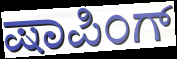
ಷಾಪಿಂಗ್